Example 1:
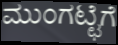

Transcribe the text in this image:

ಮುಂಗಟ್ಟೆಗೆ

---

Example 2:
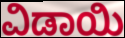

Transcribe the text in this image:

ವಿಡಾಯಿ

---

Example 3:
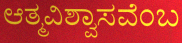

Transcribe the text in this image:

ಆತ್ಮವಿಶ್ವಾಸವೆಂಬ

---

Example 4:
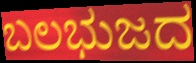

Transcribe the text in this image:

ಬಲಭುಜದ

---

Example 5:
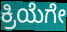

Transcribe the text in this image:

ಕ್ರಿಯೆಗೇ